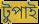
টুপাই